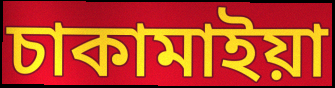
চাকামাইয়া